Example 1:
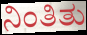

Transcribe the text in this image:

ನಿಂತಿತು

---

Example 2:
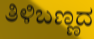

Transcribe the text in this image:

ತಿಳಿಬಣ್ಣದ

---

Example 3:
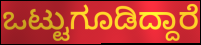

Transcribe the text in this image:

ಒಟ್ಟುಗೂಡಿದ್ದಾರೆ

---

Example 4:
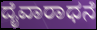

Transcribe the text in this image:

ದೈವಾರಾಧನೆ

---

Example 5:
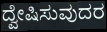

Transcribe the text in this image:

ದ್ವೇಷಿಸುವುದರ